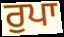
ਰੁਪਾ